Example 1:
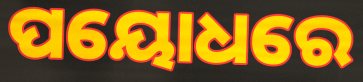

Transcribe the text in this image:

ପୟୋଧରେ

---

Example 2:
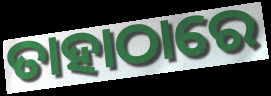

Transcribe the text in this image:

ତାହାଠାରେ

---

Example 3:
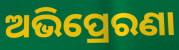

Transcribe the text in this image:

ଅଭିପ୍ରେରଣା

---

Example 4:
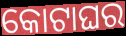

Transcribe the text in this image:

କୋଟାଘର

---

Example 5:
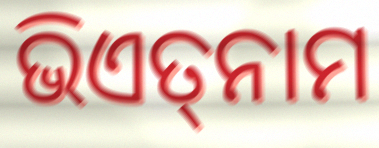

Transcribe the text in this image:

ଭିଏତ୍‌ନାମ